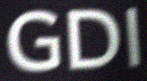
GDI